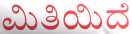
ಮಿತಿಯಿದೆ